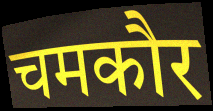
चमकौर